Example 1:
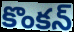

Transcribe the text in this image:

కొంకన్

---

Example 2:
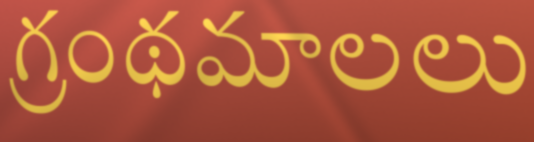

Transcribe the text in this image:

గ్రంథమాలలు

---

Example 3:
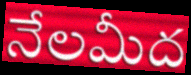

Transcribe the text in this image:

నేలమీద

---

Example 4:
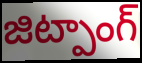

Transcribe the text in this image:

జిట్పాంగ్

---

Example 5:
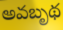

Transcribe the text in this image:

అవబృథ